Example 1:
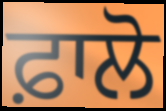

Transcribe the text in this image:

ਫ਼ਾਲੋ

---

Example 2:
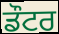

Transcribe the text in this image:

ਡੌਟਰ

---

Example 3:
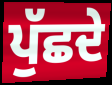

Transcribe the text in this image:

ਪੁੱਛਦੇ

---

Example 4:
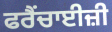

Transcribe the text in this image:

ਫਰੈਂਚਾਈਜ਼ੀ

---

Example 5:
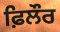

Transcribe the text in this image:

ਫ਼ਿਲੌਰ